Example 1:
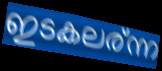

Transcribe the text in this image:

ഇടകലര്ന്ന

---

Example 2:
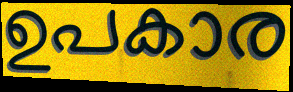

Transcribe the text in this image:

ഉപകാര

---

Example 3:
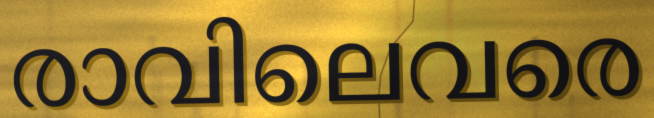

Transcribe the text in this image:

രാവിലെവരെ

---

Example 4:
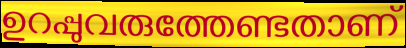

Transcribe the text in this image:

ഉറപ്പുവരുത്തേണ്ടതാണ്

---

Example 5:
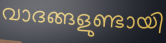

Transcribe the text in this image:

വാദങ്ങളുണ്ടായി